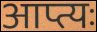
आप्त्यः